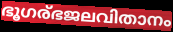
ഭൂഗര്ഭജലവിതാനം